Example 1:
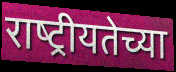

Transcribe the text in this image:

राष्ट्रीयतेच्या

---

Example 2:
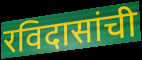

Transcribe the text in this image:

रविदासांची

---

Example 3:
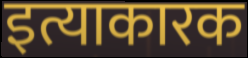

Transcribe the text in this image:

इत्याकारक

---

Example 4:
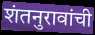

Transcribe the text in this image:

शंतनुरावांची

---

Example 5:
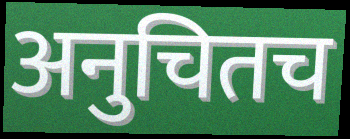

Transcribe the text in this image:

अनुचितच